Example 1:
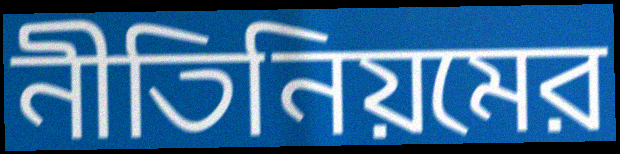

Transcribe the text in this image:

নীতিনিয়মের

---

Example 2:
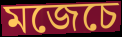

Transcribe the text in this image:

মজেচে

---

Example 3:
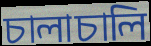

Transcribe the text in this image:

চালাচালি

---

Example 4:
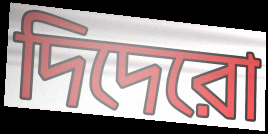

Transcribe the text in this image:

দিদেরো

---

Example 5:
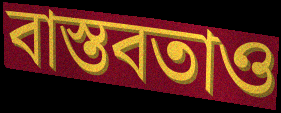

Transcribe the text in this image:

বাস্তবতাও